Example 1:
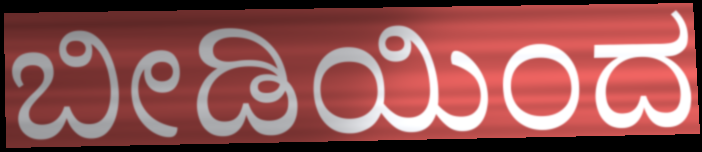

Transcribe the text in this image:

ಬೀಡಿಯಿಂದ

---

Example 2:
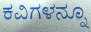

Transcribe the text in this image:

ಕವಿಗಳನ್ನೂ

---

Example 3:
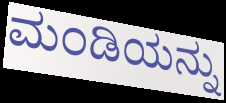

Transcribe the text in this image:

ಮಂಡಿಯನ್ನು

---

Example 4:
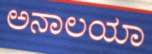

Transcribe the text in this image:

ಅನಾಲಯಾ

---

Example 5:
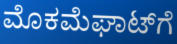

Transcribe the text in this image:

ಮೊಕಮೆಘಾಟ್‌ಗೆ